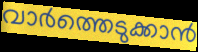
വാർത്തെടുക്കാൻ